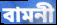
বামনী